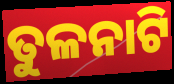
ତୁଳନାଟି